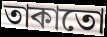
তাকাতো